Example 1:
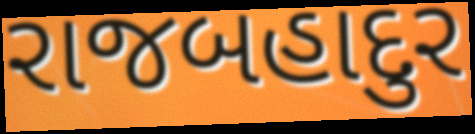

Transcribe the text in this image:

રાજબહાદુર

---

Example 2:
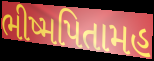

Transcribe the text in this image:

ભીષ્મપિતામહ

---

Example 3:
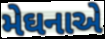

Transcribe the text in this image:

મેઘનાએ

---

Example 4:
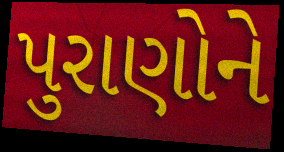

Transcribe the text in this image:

પુરાણોને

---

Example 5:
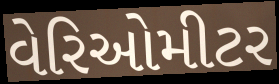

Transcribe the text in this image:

વેરિઓમીટર